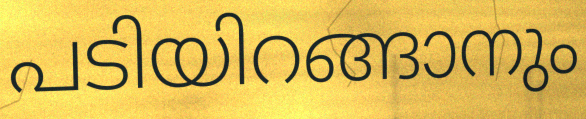
പടിയിറങ്ങാനും